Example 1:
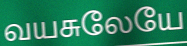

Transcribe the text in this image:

வயசுலேயே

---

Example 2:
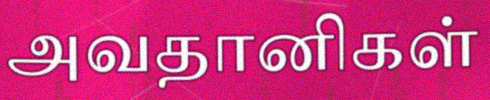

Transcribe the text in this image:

அவதானிகள்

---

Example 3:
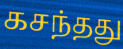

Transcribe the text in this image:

கசந்தது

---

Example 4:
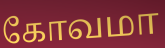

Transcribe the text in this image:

கோவமா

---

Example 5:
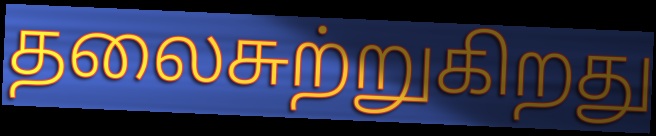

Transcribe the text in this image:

தலைசுற்றுகிறது